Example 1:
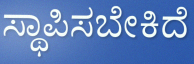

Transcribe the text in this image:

ಸ್ಥಾಪಿಸಬೇಕಿದೆ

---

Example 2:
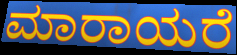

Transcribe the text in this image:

ಮಾರಾಯರೆ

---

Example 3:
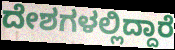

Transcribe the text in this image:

ದೇಶಗಳಲ್ಲಿದ್ದಾರೆ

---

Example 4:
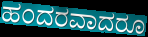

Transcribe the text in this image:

ಹಂದರವಾದರೂ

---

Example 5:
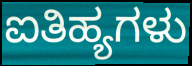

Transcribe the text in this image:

ಐತಿಹ್ಯಗಳು